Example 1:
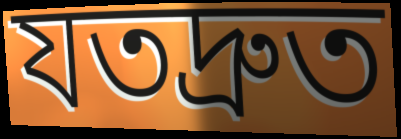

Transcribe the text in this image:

যতদ্রুত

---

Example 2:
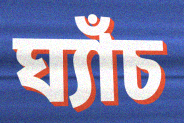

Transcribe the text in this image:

ঘ্যাঁচ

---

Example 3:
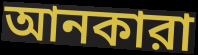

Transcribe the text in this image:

আনকারা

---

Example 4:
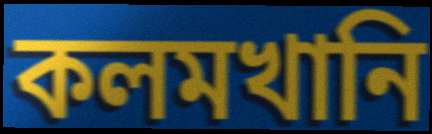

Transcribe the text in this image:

কলমখানি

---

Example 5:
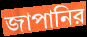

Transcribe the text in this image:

জাপানির